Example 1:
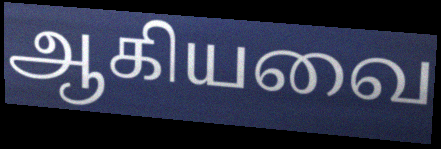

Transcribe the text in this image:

ஆகியவை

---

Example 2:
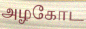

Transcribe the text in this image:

அழகோட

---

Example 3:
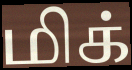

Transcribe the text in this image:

மிக்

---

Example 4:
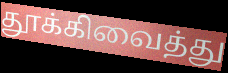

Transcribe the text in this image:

தூக்கிவைத்து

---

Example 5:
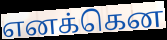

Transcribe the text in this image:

எனக்கென